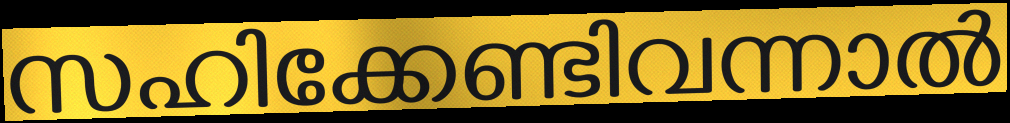
സഹിക്കേണ്ടിവന്നാൽ